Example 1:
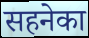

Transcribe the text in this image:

सहनेका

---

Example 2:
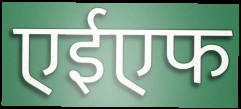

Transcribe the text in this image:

एईएफ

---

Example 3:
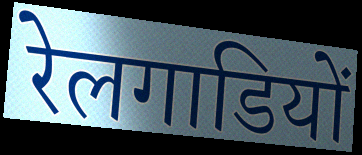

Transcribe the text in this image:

रेलगाडियों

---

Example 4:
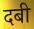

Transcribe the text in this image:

दबी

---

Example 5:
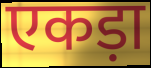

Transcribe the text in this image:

एकड़ा